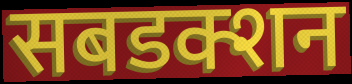
सबडक्शन